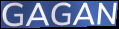
GAGAN